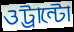
ওট্রান্টো